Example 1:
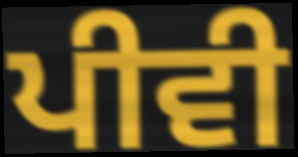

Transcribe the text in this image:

ਪੀਵੀ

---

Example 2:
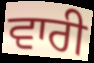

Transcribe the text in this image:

ਵਾਰੀ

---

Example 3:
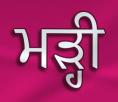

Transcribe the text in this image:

ਮੜ੍ਹੀ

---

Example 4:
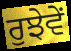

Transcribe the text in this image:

ਰੁਝੇਵੇਂ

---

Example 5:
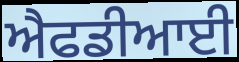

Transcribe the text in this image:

ਐਫਡੀਆਈ